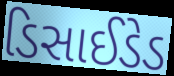
ડિસાઈડેડ